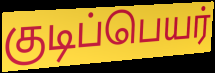
குடிப்பெயர்